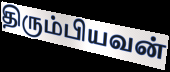
திரும்பியவன்